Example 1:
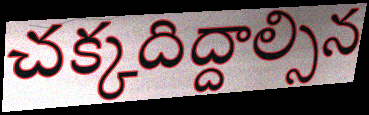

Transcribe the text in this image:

చక్కదిద్దాల్సిన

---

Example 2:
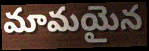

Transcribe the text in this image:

మామయైన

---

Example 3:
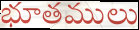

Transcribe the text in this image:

భూతములు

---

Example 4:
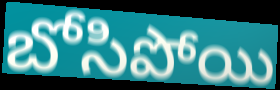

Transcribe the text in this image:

బోసిపోయి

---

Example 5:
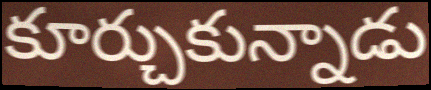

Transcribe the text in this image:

కూర్చుకున్నాడు